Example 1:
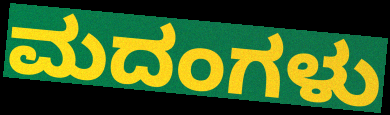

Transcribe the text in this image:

ಮದಂಗಳು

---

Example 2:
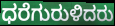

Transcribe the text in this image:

ಧರೆಗುರುಳಿದರು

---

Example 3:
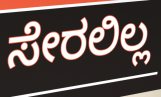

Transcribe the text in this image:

ಸೇರಲಿಲ್ಲ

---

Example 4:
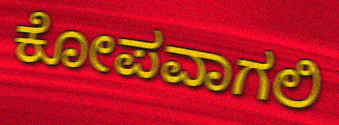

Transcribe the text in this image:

ಕೋಪವಾಗಲಿ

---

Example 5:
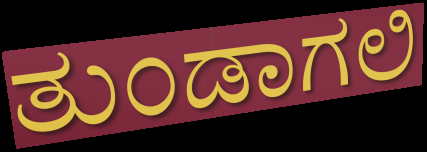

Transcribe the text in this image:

ತುಂಡಾಗಲಿ